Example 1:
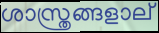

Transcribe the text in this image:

ശാസ്ത്രങ്ങളാല്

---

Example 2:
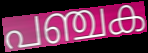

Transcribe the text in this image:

പഞ്ചക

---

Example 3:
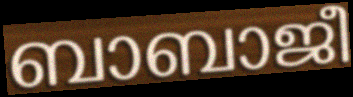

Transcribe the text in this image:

ബാബാജീ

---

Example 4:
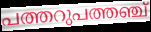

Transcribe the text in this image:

പത്തറുപത്തഞ്ച്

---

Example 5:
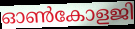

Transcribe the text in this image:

ഓൺകോളജി